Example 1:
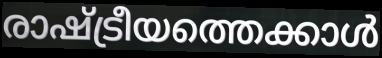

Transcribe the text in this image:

രാഷ്ട്രീയത്തെക്കാൾ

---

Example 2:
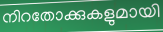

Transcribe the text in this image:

നിറതോക്കുകളുമായി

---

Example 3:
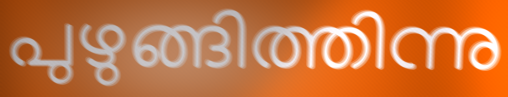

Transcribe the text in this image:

പുഴുങ്ങിത്തിന്നു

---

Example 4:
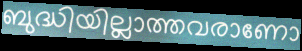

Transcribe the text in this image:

ബുദ്ധിയില്ലാത്തവരാണോ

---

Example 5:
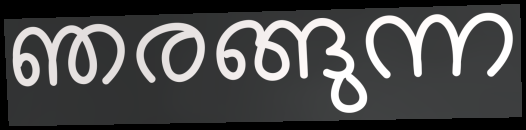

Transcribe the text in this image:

ഞരങ്ങുന്ന